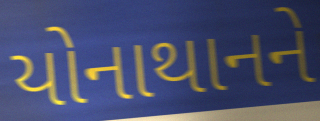
યોનાથાનને